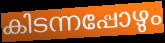
കിടന്നപ്പോഴും